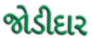
જોડીદાર